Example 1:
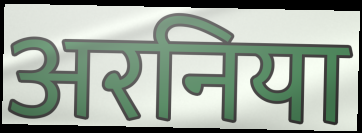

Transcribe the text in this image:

अरनिया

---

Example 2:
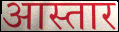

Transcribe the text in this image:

आस्तार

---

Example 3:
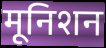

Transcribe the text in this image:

मूनिशन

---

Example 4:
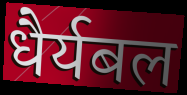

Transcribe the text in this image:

धैर्यबल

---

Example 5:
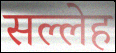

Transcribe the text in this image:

सल्लेह